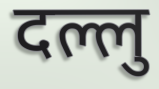
दल्लु